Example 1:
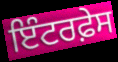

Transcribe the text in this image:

ਇੰਟਰਫ਼ੇਸ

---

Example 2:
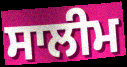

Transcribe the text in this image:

ਸਾਲੀਮ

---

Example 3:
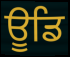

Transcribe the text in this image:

ਊਡਿ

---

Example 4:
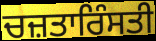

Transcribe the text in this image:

ਚਜ਼ਤਾਰਿੰਸਤੀ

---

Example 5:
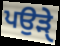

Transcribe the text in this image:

ਪਉੜੑੇ